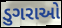
ડુગરાઓ